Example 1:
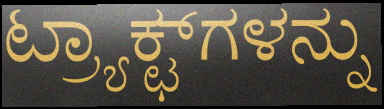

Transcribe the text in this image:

ಟ್ರ್ಯಾಕ್ಟ್‌ಗಳನ್ನು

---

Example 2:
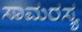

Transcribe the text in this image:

ಸಾಮರಸ್ಯ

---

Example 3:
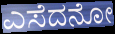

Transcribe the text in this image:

ಎಸೆದನೋ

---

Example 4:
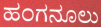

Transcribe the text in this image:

ಹಂಗನೂಲು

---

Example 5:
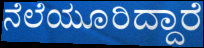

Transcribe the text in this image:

ನೆಲೆಯೂರಿದ್ದಾರೆ